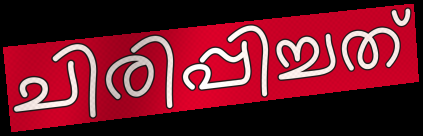
ചിരിപ്പിച്ചത്